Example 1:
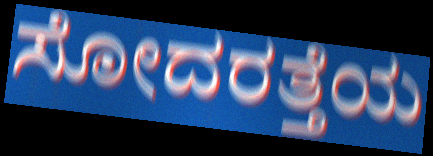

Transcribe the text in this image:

ಸೋದರತ್ತೆಯ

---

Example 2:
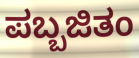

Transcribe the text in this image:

ಪಬ್ಬಜಿತಂ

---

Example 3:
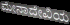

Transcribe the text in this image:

ಮೇನಾದೇವಿಯ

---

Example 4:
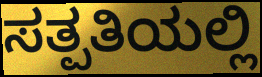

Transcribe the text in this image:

ಸತ್ಪತಿಯಲ್ಲಿ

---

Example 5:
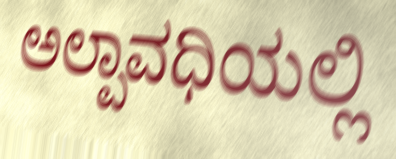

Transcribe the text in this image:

ಅಲ್ಪಾವಧಿಯಲ್ಲಿ